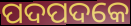
ପଦପଦକେ